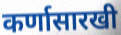
कर्णासारखी